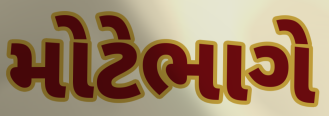
મોટેભાગે